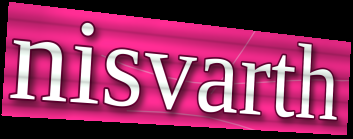
nisvarth